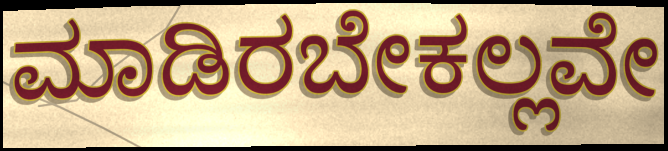
ಮಾಡಿರಬೇಕಲ್ಲವೇ